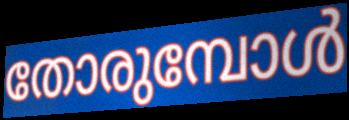
തോരുമ്പോൾ